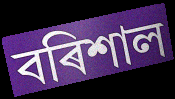
বৰিশাল